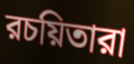
রচয়িতারা